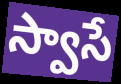
స్వాసే